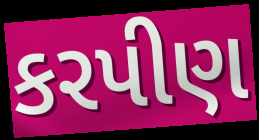
કરપીણ